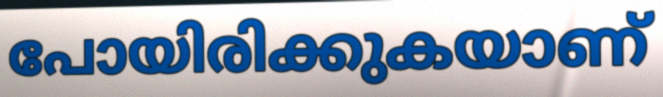
പോയിരിക്കുകയാണ്